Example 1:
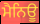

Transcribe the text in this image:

ਮੈਨਿਊ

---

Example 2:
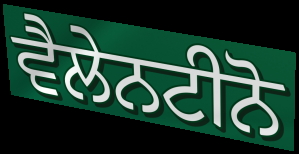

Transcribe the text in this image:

ਵੈਲੇਨਟੀਨੋ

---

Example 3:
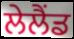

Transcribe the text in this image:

ਲੇਲੈਂਡ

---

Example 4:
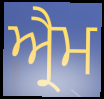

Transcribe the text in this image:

ਐ੍ਰਮ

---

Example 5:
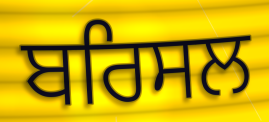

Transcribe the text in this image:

ਬਰਿਸਲ